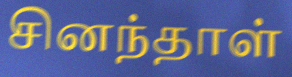
சினந்தாள்